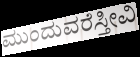
ಮುಂದುವರೆಸ್ತೀವಿ